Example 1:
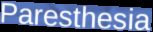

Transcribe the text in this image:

Paresthesia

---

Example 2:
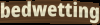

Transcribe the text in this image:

bedwetting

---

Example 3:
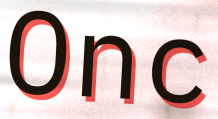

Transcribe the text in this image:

Onc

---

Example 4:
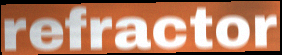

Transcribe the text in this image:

refractor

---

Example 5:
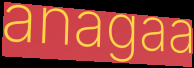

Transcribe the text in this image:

anagaa